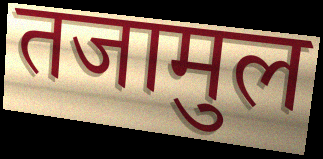
तजामुल